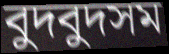
বুদবুদসম